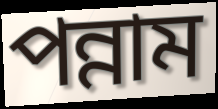
পন্নাম